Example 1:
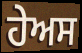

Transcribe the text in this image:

ਹੇਅਸ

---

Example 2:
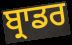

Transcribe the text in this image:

ਬ੍ਰਾਡਰ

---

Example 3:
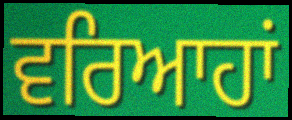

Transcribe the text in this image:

ਵਰਿਆਹਾਂ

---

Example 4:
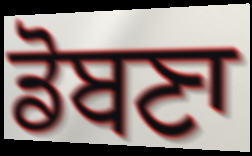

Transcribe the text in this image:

ਡੋਬਣਾ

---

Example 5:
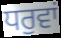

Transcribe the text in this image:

ਧਰੁਵਾਂ